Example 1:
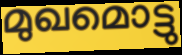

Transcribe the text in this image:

മുഖമൊട്ടു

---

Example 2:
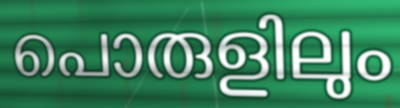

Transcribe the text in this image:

പൊരുളിലും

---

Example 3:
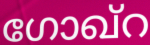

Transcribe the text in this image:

ഗോഖ്റ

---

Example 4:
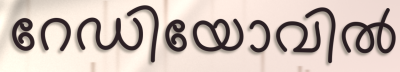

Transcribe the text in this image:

റേഡിയോവിൽ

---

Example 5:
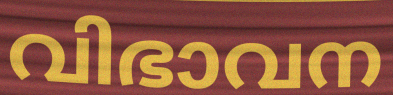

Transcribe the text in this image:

വിഭാവന